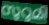
സുറുമി